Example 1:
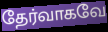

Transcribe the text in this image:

தேர்வாகவே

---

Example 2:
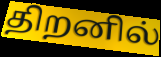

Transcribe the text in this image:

திறனில்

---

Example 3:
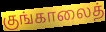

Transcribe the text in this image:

குங்காலைத்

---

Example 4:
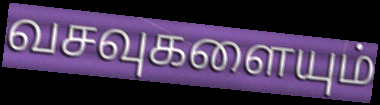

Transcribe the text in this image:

வசவுகளையும்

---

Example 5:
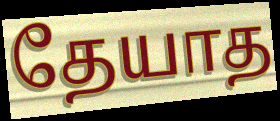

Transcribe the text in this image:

தேயாத